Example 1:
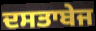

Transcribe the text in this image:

ਦਸਤਾਬੇਜ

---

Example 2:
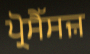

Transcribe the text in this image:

ਪ੍ਰੋਸੈੱਸਜ਼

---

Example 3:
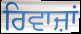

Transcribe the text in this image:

ਰਿਵਾਜ਼ਾਂ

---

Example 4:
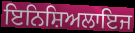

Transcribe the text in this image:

ਇਨਿਸ਼ਿਅਲਾਇਜ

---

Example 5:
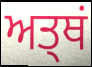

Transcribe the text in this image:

ਅਤ੍ਥਂ